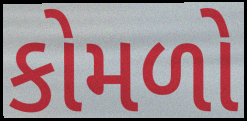
કોમળો